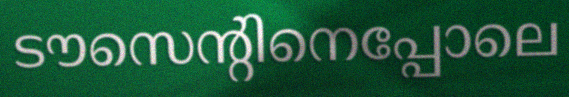
ടൗസെന്റിനെപ്പോലെ